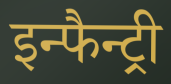
इन्फैन्ट्री